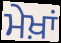
ਮੇਖ਼ਾਂ